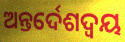
ଅନ୍ତର୍ଦେଶଦ୍ଵୟ